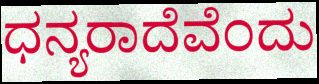
ಧನ್ಯರಾದೆವೆಂದು